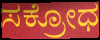
ಸಕ್ರೋಧ